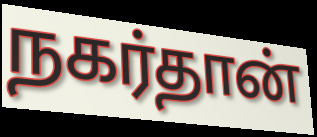
நகர்தான்